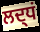
ਲਦ੍ਧਂ